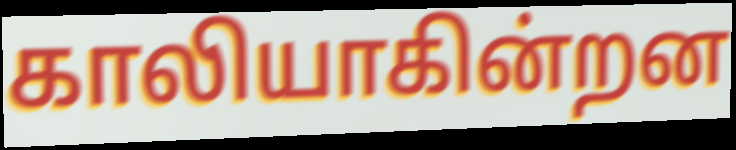
காலியாகின்றன